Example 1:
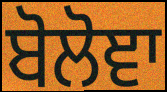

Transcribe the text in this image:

ਬੋਲੋਞਾ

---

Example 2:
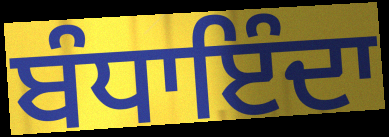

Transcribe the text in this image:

ਬੰਧਾਇੰਦਾ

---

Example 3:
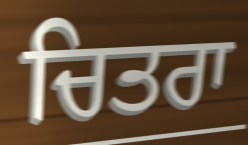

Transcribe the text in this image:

ਚਿਤਰਾ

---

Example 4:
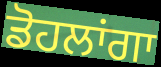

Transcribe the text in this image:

ਡੋਹਲਾਂਗਾ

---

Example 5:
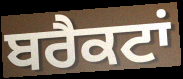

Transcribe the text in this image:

ਬਰੈਕਟਾਂ